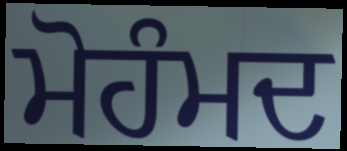
ਮੋਹੰਮਦ